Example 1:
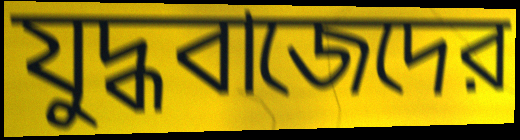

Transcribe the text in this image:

যুদ্ধবাজেদের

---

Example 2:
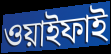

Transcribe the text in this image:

ওয়াইফাই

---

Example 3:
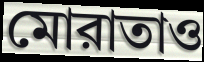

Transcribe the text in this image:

মোরাতাও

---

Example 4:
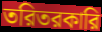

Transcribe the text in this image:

তরিতরকারি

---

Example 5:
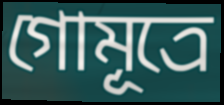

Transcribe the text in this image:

গোমূত্রে